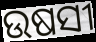
ଉଷସୀ